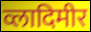
व्लादिमीर